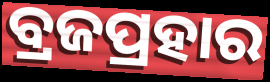
ବ୍ରଜପ୍ରହାର